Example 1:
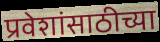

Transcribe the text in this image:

प्रवेशांसाठीच्या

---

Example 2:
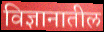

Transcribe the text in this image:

विज्ञानातील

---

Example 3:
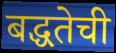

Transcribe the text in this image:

बद्धतेची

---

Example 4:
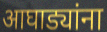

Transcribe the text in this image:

आघाड्यांना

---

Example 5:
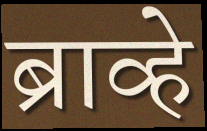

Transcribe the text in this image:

ब्राव्हे